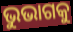
ଭୁଭାଗକୁ